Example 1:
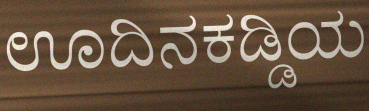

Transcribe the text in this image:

ಊದಿನಕಡ್ಡಿಯ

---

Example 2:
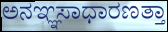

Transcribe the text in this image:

ಅನಞ್ಞಸಾಧಾರಣತ್ತಾ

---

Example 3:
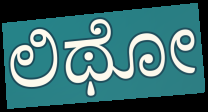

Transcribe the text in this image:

ಲಿಥೋ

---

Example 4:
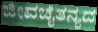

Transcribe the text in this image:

ಜೀವಚೈತನ್ಯದ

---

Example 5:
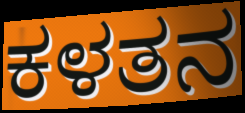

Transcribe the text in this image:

ಕಳತನ